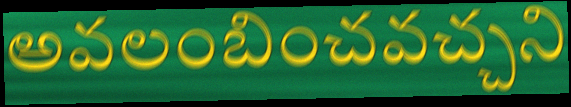
అవలంబించవచ్చని